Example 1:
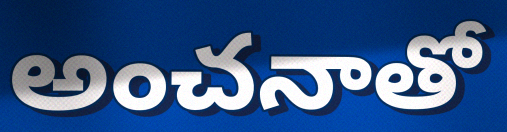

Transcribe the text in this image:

అంచనాతో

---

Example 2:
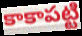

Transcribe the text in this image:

కాకాపట్టి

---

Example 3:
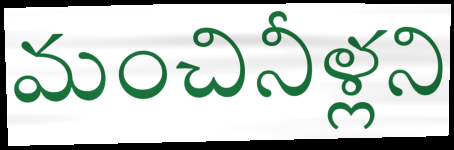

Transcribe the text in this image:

మంచినీళ్లని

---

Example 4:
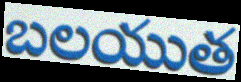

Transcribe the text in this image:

బలయుత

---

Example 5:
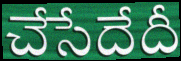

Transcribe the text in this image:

చేసేదేదీ